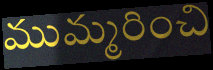
ముమ్మరించి